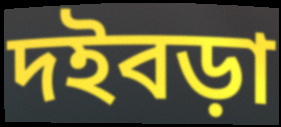
দইবড়া